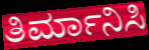
ತಿರ್ಮಾನಿಸಿ